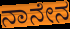
ನಾನೇನ